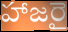
హాజరై